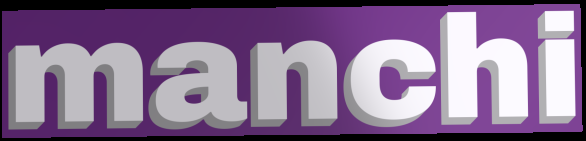
manchi